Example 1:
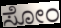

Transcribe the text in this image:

ಸೋಂ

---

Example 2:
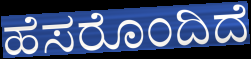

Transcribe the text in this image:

ಹೆಸರೊಂದಿದೆ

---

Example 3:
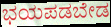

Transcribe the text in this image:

ಭಯಪಡಬೇಡ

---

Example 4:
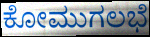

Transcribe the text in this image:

ಕೋಮುಗಲಭೆ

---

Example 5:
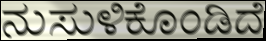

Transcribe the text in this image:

ನುಸುಳಿಕೊಂಡಿದೆ